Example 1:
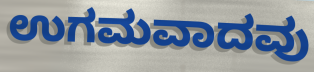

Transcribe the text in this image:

ಉಗಮವಾದವು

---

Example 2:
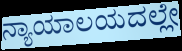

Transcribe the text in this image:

ನ್ಯಾಯಾಲಯದಲ್ಲೇ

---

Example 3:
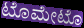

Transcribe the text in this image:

ಟೊಮೇಟೊ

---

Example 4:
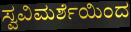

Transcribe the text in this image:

ಸ್ವವಿಮರ್ಶೆಯಿಂದ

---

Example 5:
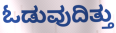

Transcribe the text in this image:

ಓಡುವುದಿತ್ತು